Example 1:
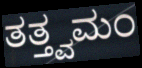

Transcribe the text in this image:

ತತ್ತ್ವಮಂ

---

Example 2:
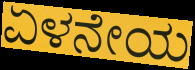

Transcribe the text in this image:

ಏಳನೇಯ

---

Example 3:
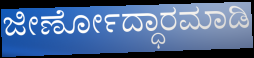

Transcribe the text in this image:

ಜೀರ್ಣೋದ್ಧಾರಮಾಡಿ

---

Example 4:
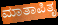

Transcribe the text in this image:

ಮಾತಾಪಿತೃ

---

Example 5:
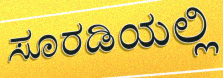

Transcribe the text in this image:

ಸೂರಡಿಯಲ್ಲಿ